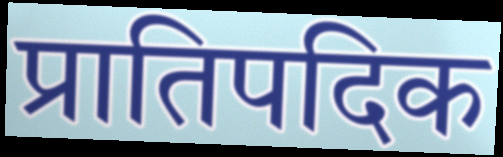
प्रातिपदिक